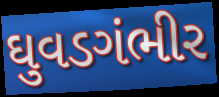
ઘુવડગંભીર